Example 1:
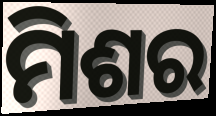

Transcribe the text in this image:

ମିଶର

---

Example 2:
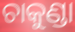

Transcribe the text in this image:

ଚାକୁଣ୍ଡା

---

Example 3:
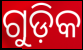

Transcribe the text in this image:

ଗୁଡ଼ିକ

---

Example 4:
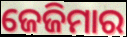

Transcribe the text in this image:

ଜେଜିମାର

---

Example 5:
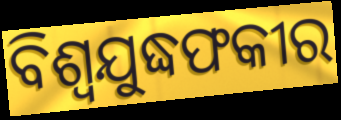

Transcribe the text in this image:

ବିଶ୍ୱଯୁଦ୍ଧଫକୀର